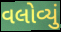
વલોવ્યું